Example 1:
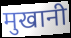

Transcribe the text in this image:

मुखानी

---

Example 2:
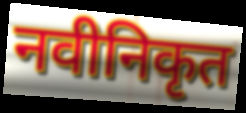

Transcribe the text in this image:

नवीनिकृत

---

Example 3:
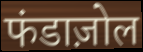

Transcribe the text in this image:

फंडाज़ोल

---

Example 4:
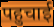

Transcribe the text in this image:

पहुचाई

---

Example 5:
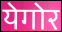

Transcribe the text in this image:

येगोर